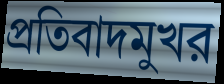
প্রতিবাদমুখর